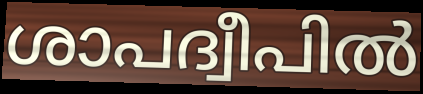
ശാപദ്വീപിൽ